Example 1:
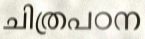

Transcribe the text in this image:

ചിത്രപഠന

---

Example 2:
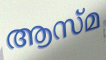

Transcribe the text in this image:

ആസ്മ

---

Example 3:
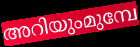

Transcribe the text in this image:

അറിയുംമുമ്പേ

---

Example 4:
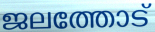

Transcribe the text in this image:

ജലത്തോട്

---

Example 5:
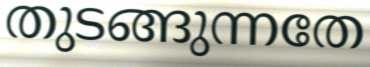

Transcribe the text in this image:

തുടങ്ങുന്നതേ